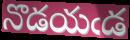
నొడయఁడ